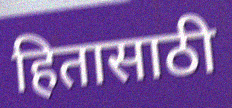
हितासाठी